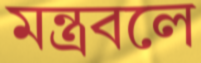
মন্ত্রবলে